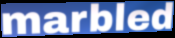
marbled